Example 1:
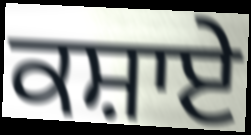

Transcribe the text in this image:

ਕਸ਼ਾਏ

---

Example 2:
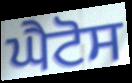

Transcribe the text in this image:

ਘੈਟੋਸ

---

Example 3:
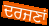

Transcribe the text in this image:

ਦਰਜਣਾਂ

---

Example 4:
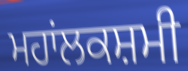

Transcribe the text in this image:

ਮਹਾਂਲਕਸ਼ਮੀ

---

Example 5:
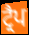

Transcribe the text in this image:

ਟ੍ਰੈਪ